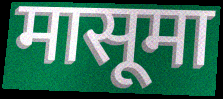
मासूमा